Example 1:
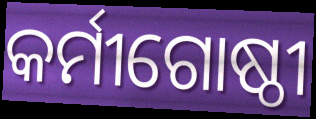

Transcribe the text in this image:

କର୍ମୀଗୋଷ୍ଠୀ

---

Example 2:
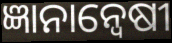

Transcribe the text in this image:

ଜ୍ଞାନାନ୍ୱେଷୀ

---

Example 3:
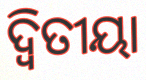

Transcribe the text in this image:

ଦ୍ଵିତୀୟା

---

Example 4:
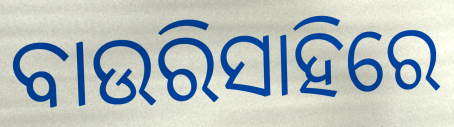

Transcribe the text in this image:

ବାଉରିସାହିରେ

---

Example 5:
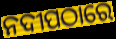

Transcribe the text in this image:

ନଦୀପଠାରେ